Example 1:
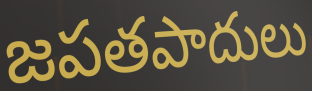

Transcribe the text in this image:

జపతపాదులు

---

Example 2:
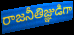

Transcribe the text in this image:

రాజనీతిజ్ఞుడిగా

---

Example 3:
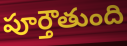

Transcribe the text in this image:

పూర్తౌతుంది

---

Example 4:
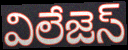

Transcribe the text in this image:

విలేజెస్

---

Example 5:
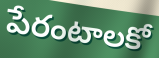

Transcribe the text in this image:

పేరంటాలకో